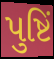
પુષ્ટિં